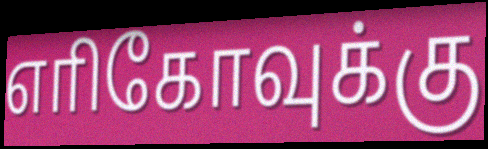
எரிகோவுக்கு